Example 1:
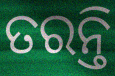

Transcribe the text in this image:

ତରନ୍ତି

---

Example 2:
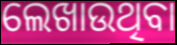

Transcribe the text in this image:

ଲେଖାଉଥିବା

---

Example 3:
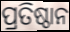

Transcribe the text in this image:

ପ୍ରତିଷ୍ଠାନ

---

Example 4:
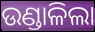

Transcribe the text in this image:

ଉଣ୍ଡାଳିଲା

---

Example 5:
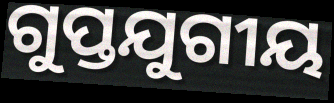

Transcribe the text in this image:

ଗୁପ୍ତଯୁଗୀୟ